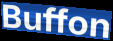
Buffon